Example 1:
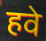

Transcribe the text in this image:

हवे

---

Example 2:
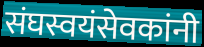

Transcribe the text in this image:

संघस्वयंसेवकांनी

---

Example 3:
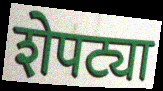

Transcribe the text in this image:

शेपट्या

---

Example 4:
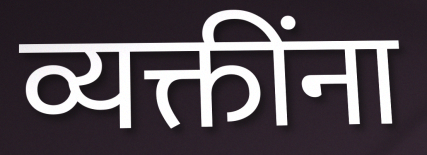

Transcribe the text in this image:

व्यक्तींना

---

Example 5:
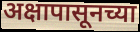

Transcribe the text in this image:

अक्षापासूनच्या